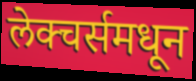
लेक्चर्समधून